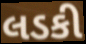
લડકી